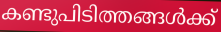
കണ്ടുപിടിത്തങ്ങൾക്ക്